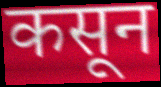
कसून